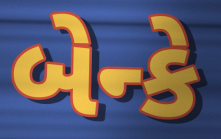
બેન્કે